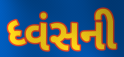
ધ્વંસની